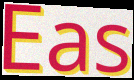
Eas